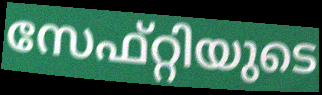
സേഫ്റ്റിയുടെ